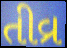
તીવ્ર